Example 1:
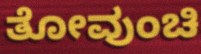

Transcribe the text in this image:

ತೋವುಂಚಿ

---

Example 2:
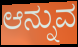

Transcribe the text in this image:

ಆನ್ನುವ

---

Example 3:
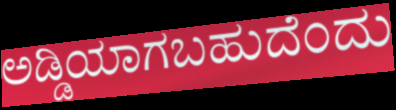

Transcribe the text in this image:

ಅಡ್ಡಿಯಾಗಬಹುದೆಂದು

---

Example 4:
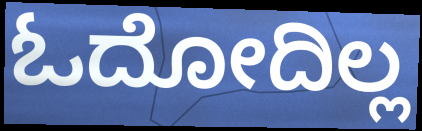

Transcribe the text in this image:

ಓದೋದಿಲ್ಲ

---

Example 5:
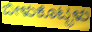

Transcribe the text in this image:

ಬೀಳುಕೊಟ್ಟಳು